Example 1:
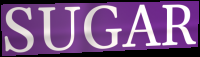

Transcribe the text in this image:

SUGAR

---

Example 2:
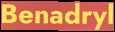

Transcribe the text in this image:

Benadryl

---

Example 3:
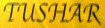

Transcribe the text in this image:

TUSHAR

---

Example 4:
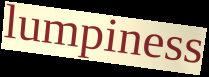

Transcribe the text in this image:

lumpiness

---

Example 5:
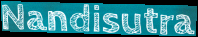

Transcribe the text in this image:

Nandisutra